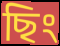
ছিং